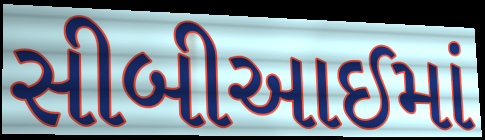
સીબીઆઈમાં